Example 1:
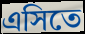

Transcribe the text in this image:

এসিতে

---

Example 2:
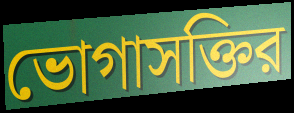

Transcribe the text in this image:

ভোগাসক্তির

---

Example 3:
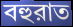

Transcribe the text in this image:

বহুরাত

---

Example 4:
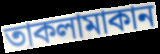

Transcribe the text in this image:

তাকলামাকান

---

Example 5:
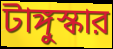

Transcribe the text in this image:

টাঙ্গুস্কার